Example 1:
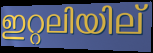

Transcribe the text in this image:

ഇറ്റലിയില്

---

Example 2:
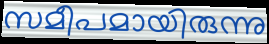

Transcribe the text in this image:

സമീപമായിരുന്നു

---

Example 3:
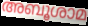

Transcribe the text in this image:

അബൂശാമ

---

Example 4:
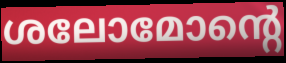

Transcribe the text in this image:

ശലോമോന്റെ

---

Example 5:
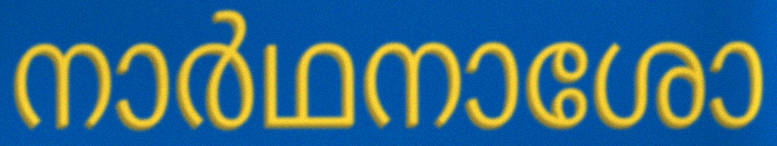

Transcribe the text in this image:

നാർഥനാശോ